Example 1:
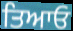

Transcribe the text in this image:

ਤਿਆਓ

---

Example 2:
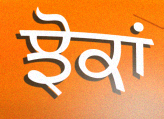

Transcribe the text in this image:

ਝੋਕਾਂ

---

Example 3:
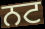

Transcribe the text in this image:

ਨਟ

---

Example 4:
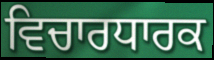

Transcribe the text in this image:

ਵਿਚਾਰਧਾਰਕ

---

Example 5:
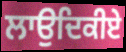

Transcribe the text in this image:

ਲਾਉਦਿਕੀਏ